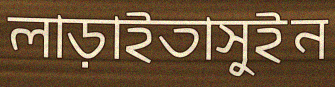
লাড়াইতাসুইন